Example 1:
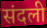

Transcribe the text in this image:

संदली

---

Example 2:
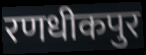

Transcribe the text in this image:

रणधीकपुर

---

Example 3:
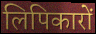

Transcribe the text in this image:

लिपिकारों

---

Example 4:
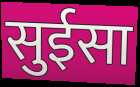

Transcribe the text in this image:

सुईसा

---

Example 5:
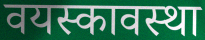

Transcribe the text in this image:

वयस्कावस्था